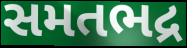
સમતભદ્ર